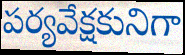
పర్యవేక్షకునిగా